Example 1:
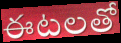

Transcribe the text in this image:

ఈటలతో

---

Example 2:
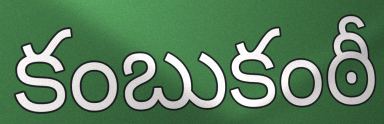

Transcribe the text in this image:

కంబుకంఠీ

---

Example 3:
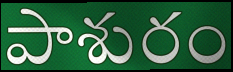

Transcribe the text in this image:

పాశురం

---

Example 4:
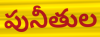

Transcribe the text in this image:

పునీతుల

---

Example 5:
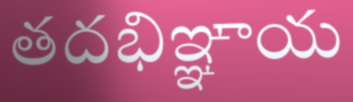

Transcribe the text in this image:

తదభిఞ్ఞాయ